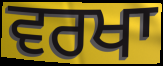
ਵਰਖਾ